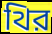
থির